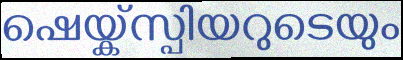
ഷെയ്ക്സ്പിയറുടെയും